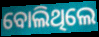
ବୋଲିଥିଲେ